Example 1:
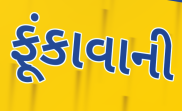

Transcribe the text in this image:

ફૂંકાવાની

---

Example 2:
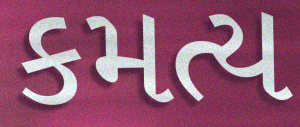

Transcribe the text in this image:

કમત્ય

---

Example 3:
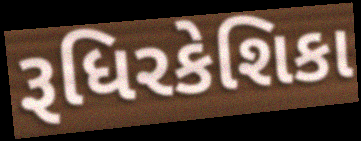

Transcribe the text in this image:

રૂધિરકેશિકા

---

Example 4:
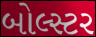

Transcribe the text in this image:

બોલ્સ્ટર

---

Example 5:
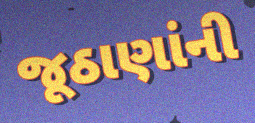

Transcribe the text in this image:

જૂઠાણાંની